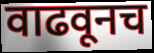
वाढवूनच